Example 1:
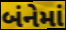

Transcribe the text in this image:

બંનેમાં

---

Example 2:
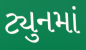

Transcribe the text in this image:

ટ્યુનમાં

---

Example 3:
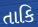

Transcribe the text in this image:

તાકિ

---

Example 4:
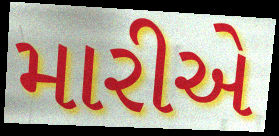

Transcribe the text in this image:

મારીએ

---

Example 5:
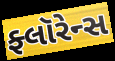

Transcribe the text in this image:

ફ્લૉરેન્સ